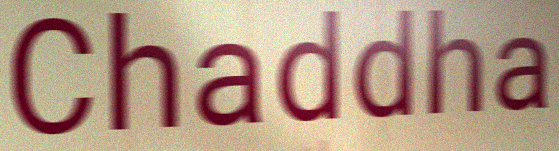
Chaddha